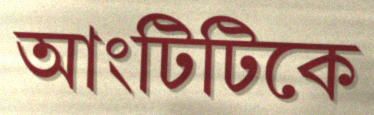
আংটিটিকে